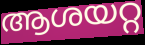
ആശയറ്റ